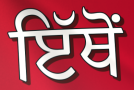
ਇੱਥੋਂ